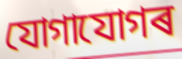
যোগাযোগৰ